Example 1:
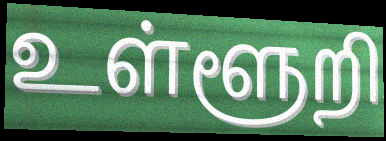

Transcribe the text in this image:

உள்ளூறி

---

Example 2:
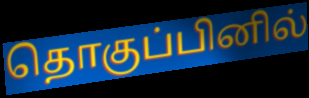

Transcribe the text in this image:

தொகுப்பினில்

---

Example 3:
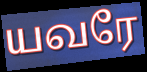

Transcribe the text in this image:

யவரே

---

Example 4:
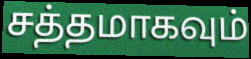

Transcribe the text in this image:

சத்தமாகவும்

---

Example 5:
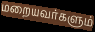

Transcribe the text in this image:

மறையவர்களும்